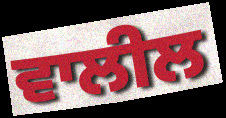
ਵਾਲੀਲ